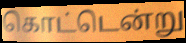
கொட்டென்று